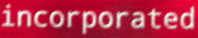
incorporated